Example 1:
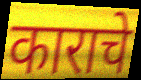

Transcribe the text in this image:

काराचे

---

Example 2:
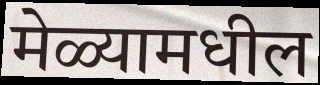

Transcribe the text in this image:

मेळ्यामधील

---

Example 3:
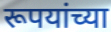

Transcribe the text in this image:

रूपयांच्या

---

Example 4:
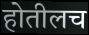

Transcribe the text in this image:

होतीलच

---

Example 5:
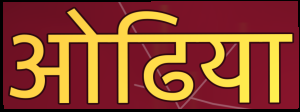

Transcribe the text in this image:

ओढिया